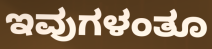
ಇವುಗಳಂತೂ